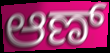
ಆಣ್